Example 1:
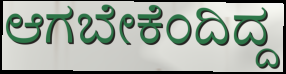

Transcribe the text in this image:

ಆಗಬೇಕೆಂದಿದ್ದ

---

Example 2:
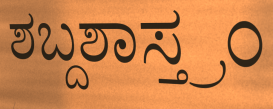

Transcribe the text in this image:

ಶಬ್ದಶಾಸ್ತ್ರಂ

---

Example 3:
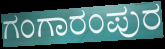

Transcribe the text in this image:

ಗಂಗಾರಂಪುರ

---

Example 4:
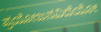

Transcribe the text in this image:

ಪ್ರಯೋಜನವಿದೆಯೋ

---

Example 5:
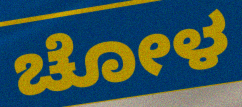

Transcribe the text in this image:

ಚೋಳ